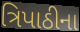
ત્રિપાઠીના